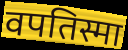
वपतिस्मा